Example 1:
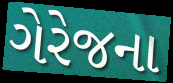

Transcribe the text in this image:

ગેરેજના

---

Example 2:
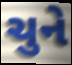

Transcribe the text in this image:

ચુને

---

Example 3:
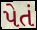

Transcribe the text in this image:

પેતં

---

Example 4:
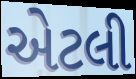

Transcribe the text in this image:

એટલી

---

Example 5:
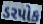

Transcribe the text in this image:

ડરપોક